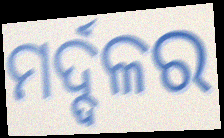
ମର୍ଦ୍ଦଳର